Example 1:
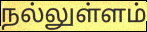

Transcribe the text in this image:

நல்லுள்ளம்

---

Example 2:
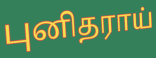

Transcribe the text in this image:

புனிதராய்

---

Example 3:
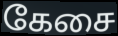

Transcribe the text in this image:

கேசை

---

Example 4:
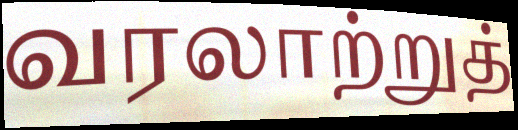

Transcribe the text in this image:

வரலாற்றுத்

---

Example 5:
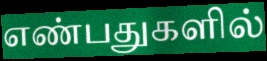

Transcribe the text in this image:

எண்பதுகளில்